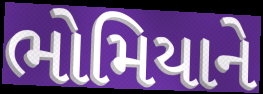
ભોમિયાને